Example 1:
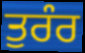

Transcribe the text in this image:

ਤੁਰੰਰ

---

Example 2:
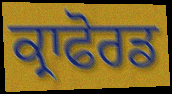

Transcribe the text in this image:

ਕ੍ਰਾਫੋਰਡ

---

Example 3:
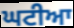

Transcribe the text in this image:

ਘਟੀਆ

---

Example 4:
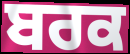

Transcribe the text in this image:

ਬਰਕ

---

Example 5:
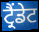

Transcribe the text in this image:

ਟ੍ਰੈਂਡੇਟ